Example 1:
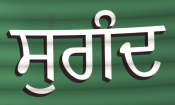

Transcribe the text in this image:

ਸੁਗੰਦ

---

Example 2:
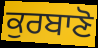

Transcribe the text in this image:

ਕੁਰਬਾਣੋ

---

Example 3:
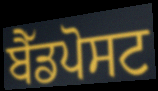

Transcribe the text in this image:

ਬੈੱਡਪੋਸਟ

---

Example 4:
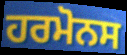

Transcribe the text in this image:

ਹਰਮੋਨਸ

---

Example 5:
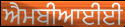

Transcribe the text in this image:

ਐਮਬੀਆਈਈ